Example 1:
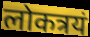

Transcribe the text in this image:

लोकत्रयं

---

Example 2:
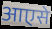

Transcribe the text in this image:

आएसे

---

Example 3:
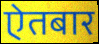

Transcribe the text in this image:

ऐतबार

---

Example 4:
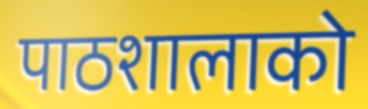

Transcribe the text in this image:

पाठशालाको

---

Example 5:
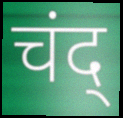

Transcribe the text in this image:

चंद्